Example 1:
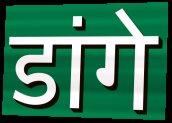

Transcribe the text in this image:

डांगे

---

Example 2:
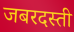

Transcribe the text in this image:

जबरदस्ती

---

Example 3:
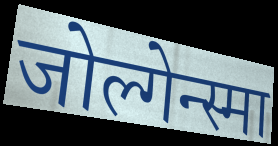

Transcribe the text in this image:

जोल्गेन्स्मा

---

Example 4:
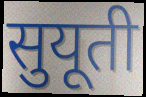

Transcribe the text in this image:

सुयूती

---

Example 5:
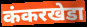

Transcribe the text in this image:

कंकरखेडा